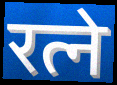
रत्ने